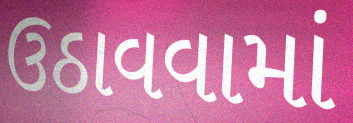
ઉઠાવવામાં